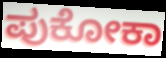
ಪುಕೋಕಾ